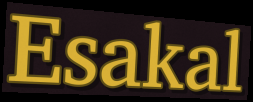
Esakal